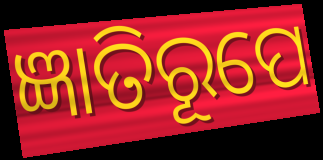
ଜ୍ଞାତିରୂପେ